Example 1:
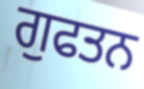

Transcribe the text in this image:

ਗੁਫਤਨ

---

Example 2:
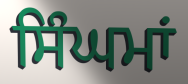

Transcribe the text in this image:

ਸਿੰਘਮਾਂ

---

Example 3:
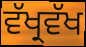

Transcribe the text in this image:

ਵੱਖ੍ਰਵੱਖ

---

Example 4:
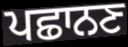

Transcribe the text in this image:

ਪਛਾਨਣ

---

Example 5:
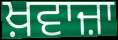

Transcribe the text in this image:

ਖ਼ਵਾਜ਼ਾ